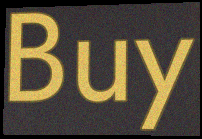
Buy